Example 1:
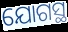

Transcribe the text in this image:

ଯୋଗସ୍ଥ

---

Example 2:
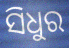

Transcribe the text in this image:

ସିଧୁର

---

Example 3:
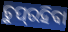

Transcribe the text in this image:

ଚୁପ୍‌ରହିବା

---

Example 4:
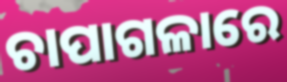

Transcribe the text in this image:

ଚାପାଗଳାରେ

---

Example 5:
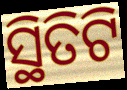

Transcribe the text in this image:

ସ୍ଥିତିଟି